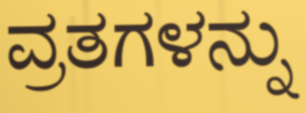
ವ್ರತಗಳನ್ನು